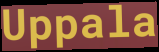
Uppala